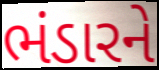
ભંડારને